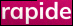
rapide